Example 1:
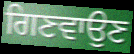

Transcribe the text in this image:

ਗਿਣਵਾਉਣ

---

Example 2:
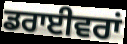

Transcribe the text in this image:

ਡਰਾਈਵਰਾਂ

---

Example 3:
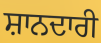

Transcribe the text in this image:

ਸ਼ਾਨਦਾਰੀ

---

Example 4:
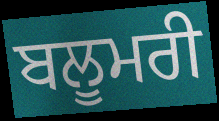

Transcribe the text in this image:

ਬਲੂਮਰੀ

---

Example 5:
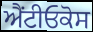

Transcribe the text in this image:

ਐਂਟੀਓਕੋਸ